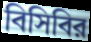
বিসিবির